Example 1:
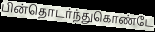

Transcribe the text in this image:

பின்தொடர்ந்துகொண்டே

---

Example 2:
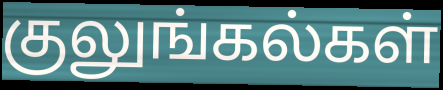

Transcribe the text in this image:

குலுங்கல்கள்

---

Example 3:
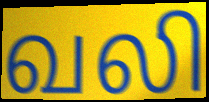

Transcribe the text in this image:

வலி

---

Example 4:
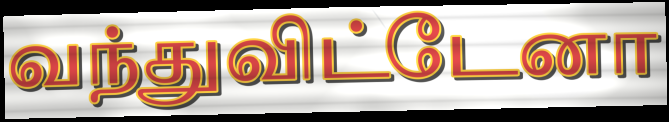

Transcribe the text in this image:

வந்துவிட்டேனா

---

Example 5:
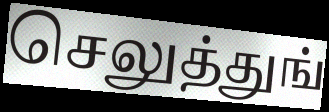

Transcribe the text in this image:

செலுத்துங்